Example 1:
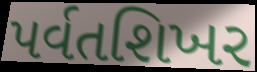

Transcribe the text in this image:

પર્વતશિખર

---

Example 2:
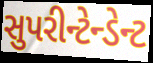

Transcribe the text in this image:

સુપરીન્ટેન્ડેન્ટ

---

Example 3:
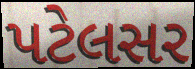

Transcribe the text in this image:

પટેલસર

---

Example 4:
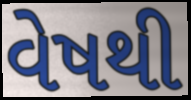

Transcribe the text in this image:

વેષથી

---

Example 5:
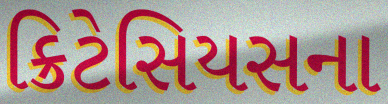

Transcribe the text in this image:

ક્રિટેસિયસના